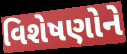
વિશેષણોને